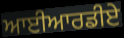
ਆਈਆਰਡੀਏ